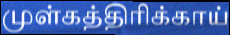
முள்கத்திரிக்காய்